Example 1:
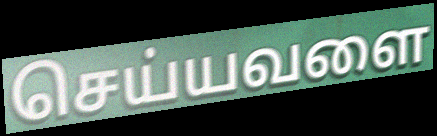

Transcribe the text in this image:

செய்யவளை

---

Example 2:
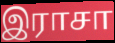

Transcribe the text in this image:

இராசா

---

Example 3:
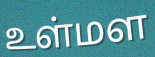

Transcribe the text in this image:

உள்மள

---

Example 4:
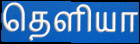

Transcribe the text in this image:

தெளியா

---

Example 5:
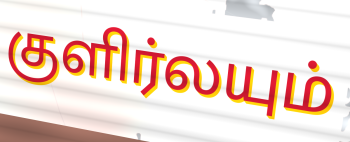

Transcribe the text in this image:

குளிர்லயும்